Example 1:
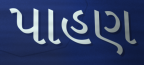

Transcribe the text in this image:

પાહણ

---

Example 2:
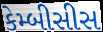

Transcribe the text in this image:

કેમ્બીસીસ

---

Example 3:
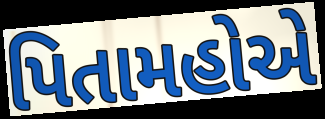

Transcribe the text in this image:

પિતામહોએ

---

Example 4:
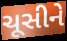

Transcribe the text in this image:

ચૂસીને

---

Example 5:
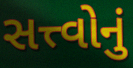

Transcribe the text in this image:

સત્ત્વોનું